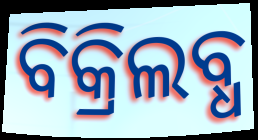
ବିକ୍ରିଲବ୍ଧ